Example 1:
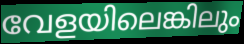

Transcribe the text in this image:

വേളയിലെങ്കിലും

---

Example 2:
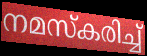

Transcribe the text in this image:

നമസ്കരിച്ച്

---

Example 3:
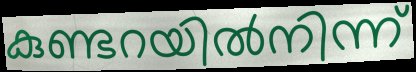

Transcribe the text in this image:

കുണ്ടറയിൽനിന്ന്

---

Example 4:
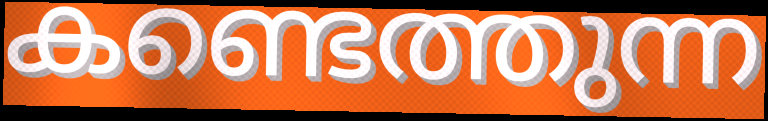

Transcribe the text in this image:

കണ്ടെത്തുന്ന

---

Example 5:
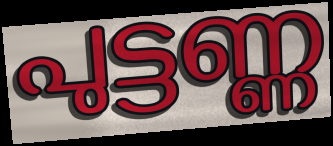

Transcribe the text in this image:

പുട്ടണ്ണ